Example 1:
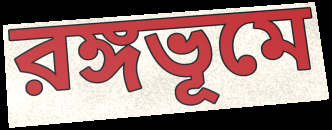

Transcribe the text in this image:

রঙ্গভূমে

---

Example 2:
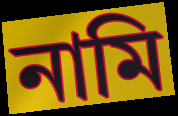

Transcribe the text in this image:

নামি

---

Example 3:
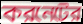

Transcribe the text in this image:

করনেটের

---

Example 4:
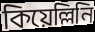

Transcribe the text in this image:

কিয়েল্লিনি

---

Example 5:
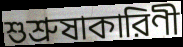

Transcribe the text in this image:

শুশ্রুষাকারিণী